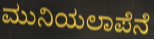
ಮುನಿಯಲಾಪೆನೆ